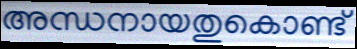
അന്ധനായതുകൊണ്ട്